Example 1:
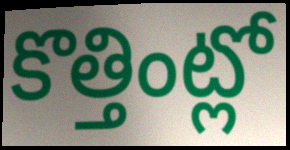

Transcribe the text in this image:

కొత్తింట్లో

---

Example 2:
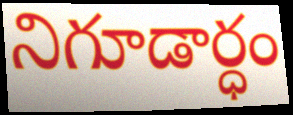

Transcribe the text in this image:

నిగూడార్ధం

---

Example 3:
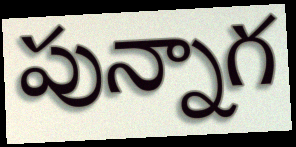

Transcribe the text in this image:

పున్నాగ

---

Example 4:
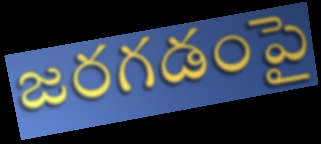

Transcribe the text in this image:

జరగడంపై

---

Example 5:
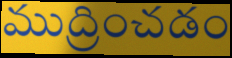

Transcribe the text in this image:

ముద్రించడం